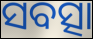
ସବତ୍ସା